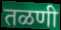
तळणी